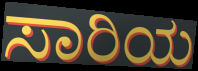
ಸಾರಿಯ